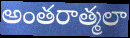
అంతరాత్మలా